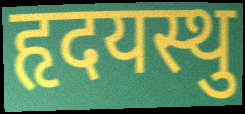
हृदयस्थु